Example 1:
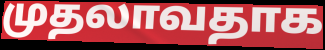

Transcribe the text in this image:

முதலாவதாக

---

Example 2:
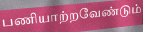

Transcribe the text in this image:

பணியாற்றவேண்டும்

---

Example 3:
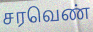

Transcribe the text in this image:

சரவெண்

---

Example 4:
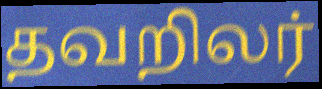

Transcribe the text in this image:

தவறிலர்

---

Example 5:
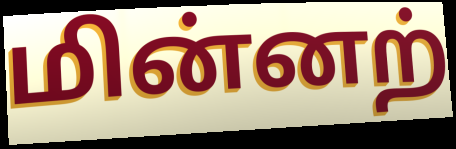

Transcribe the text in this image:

மின்னற்